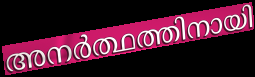
അനർത്ഥത്തിനായി